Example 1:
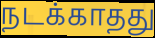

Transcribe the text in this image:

நடக்காதது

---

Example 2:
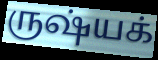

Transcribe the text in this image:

ருஷ்யக்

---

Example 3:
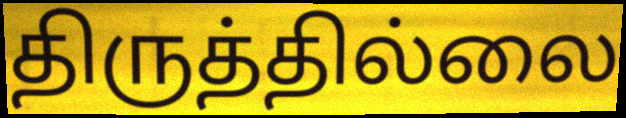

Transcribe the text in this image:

திருத்தில்லை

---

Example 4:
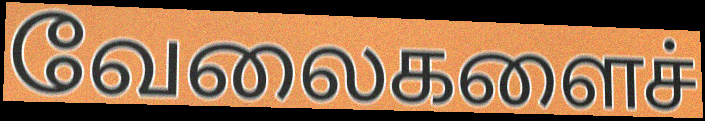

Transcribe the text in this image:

வேலைகளைச்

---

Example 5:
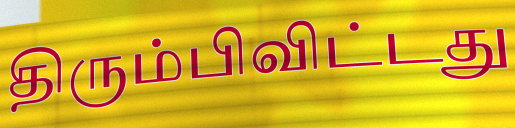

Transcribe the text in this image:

திரும்பிவிட்டது